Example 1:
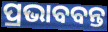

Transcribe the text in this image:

ପ୍ରଭାବବନ୍ତ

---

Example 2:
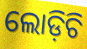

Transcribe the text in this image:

ଲୋଡ଼ିଚି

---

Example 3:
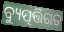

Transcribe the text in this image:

ବ୍ୟୁତ୍ପତ୍ତିଗତ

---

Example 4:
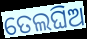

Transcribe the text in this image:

ତେଲଘିଅ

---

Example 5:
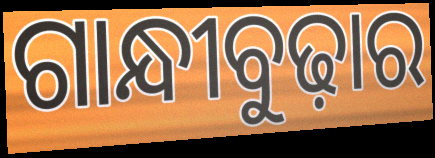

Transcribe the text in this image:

ଗାନ୍ଧୀବୁଢ଼ାର